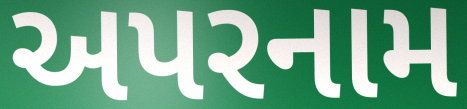
અપરનામ